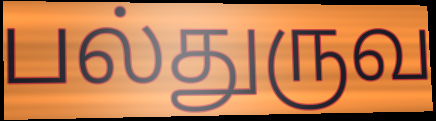
பல்துருவ